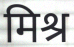
मिश्र